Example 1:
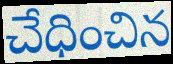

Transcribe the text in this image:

చేధించిన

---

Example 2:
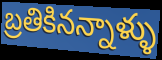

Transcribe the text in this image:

బ్రతికినన్నాళ్ళు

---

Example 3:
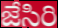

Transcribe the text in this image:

జేసిరి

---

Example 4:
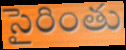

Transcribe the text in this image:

సైరింతు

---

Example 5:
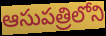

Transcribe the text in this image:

ఆసుపత్రిలోని